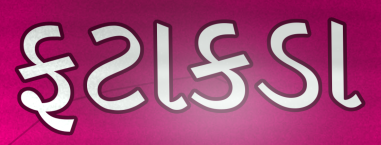
ફટાકડા